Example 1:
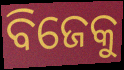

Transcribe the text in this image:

ବିଜେକୁ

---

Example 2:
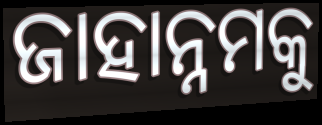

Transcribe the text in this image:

ଜାହାନ୍ନମକୁ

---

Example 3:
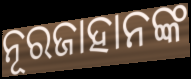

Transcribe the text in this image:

ନୂରଜାହାନଙ୍କ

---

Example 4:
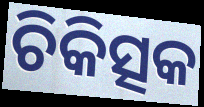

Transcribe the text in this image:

ଚିକିତ୍ସକ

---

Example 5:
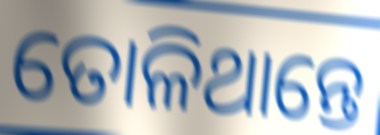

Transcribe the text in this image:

ତୋଳିଥାନ୍ତେ